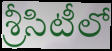
శ్రీసిటీలో